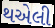
થએલી